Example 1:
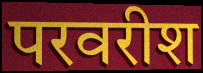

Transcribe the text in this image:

परवरीश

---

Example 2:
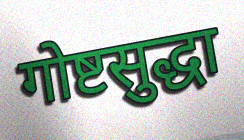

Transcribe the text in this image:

गोष्टसुद्धा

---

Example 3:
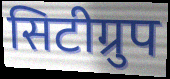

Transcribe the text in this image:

सिटीग्रुप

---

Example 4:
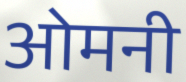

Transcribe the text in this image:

ओमनी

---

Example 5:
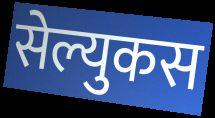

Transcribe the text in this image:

सेल्युकस